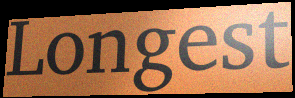
Longest